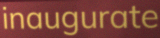
inaugurate